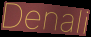
Denali